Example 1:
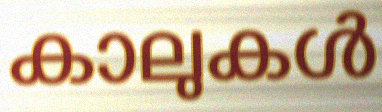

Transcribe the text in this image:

കാലുകൾ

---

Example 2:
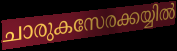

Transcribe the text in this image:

ചാരുകസേരക്കയ്യിൽ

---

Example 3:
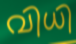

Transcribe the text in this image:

വിധി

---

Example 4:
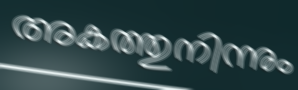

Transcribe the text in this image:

അകത്തുനിന്നും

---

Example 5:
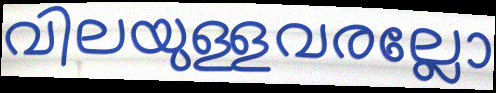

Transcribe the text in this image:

വിലയുള്ളവരല്ലോ